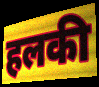
हलकी